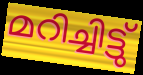
മറിച്ചിട്ടു്